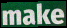
make